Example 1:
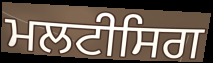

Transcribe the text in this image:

ਮਲਟੀਸਿਗ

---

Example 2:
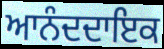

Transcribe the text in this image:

ਆਨੰਦਦਾਇਕ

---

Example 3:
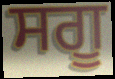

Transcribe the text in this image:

ਸਗੂ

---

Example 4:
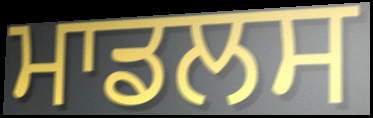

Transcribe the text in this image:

ਮਾਡਲਸ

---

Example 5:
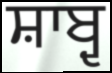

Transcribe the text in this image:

ਸ਼ਾਬ੍ਦ